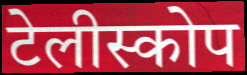
टेलीस्‍कोप